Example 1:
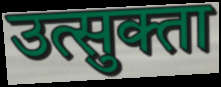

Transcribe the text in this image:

उत्सुक्ता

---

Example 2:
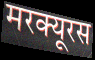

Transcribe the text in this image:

मरक्यूरस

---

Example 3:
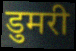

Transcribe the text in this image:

डुमरी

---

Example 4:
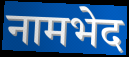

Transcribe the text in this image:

नामभेद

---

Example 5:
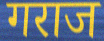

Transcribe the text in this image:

गराज